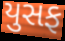
યુસફ